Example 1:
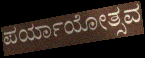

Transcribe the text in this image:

ಪರ್ಯಾಯೋತ್ಸವ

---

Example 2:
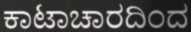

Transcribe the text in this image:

ಕಾಟಾಚಾರದಿಂದ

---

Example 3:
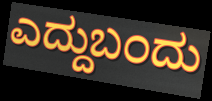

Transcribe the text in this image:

ಎದ್ದುಬಂದು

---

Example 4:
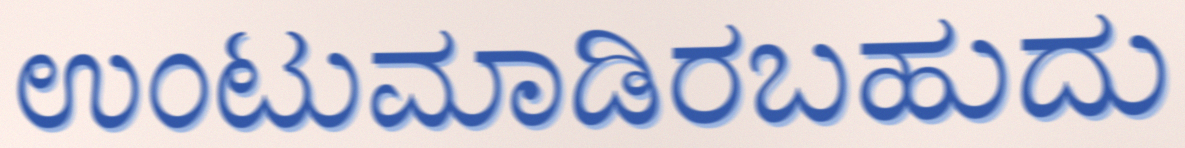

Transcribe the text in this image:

ಉಂಟುಮಾಡಿರಬಹುದು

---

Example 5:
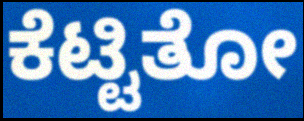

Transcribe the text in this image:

ಕೆಟ್ಟಿತೋ